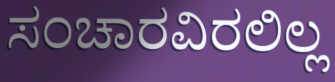
ಸಂಚಾರವಿರಲಿಲ್ಲ